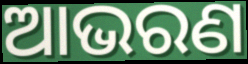
ଆଭରଣ